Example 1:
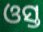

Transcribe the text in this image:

ଓସ୍ତ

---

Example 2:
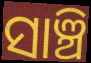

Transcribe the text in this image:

ସାଞ୍ଚି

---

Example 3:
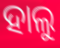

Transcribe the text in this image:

ହାଲୁ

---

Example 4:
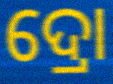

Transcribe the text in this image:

ଦ୍ରୋ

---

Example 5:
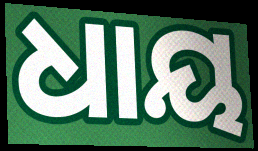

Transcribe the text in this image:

ଧାୟ